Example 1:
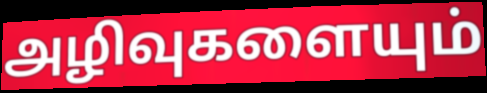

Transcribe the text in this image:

அழிவுகளையும்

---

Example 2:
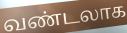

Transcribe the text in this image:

வண்டலாக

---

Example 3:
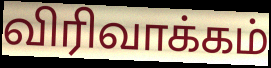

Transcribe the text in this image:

விரிவாக்கம்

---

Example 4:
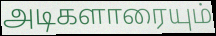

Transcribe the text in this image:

அடிகளாரையும்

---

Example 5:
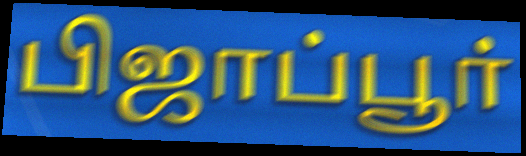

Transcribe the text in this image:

பிஜாப்பூர்